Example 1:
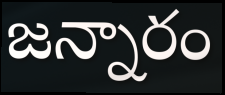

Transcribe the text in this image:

జన్నారం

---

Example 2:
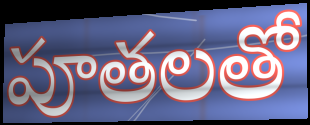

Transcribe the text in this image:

పూతలతో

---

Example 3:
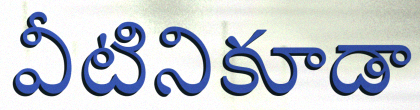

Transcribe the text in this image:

వీటినికూడా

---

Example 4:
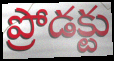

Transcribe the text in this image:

ప్రోడక్టు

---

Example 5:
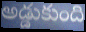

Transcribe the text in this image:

అడ్డుకుంది